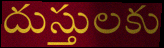
దుస్తులకు